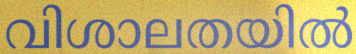
വിശാലതയിൽ